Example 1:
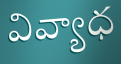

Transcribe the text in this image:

వివ్యాధ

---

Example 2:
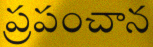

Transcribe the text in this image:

ప్రపంచాన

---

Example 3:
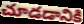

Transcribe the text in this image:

చూడడానికి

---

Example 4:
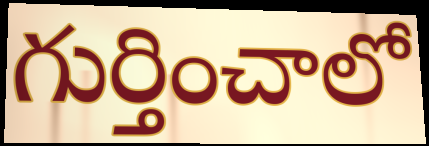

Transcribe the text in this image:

గుర్తించాలో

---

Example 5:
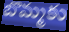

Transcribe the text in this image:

బొమ్మకు